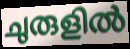
ചുരുളിൽ